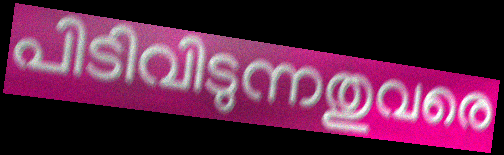
പിടിവിടുന്നതുവരെ